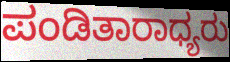
ಪಂಡಿತಾರಾಧ್ಯರು